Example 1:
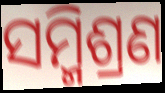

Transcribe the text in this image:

ସମ୍ମିଶ୍ରଣ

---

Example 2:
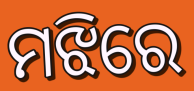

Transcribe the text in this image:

ମଝିରେ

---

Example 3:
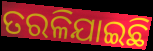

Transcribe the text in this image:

ତରଳିଯାଇଛି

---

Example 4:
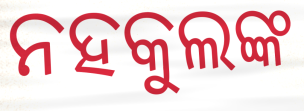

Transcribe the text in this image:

ନହକୁଲଙ୍କ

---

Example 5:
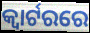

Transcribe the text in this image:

କ୍ୱାର୍ଟରରେ